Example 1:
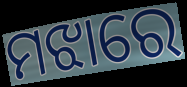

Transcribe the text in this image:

ମଝାରେ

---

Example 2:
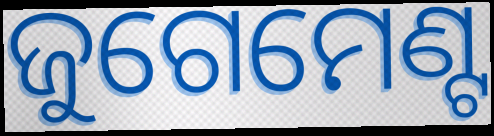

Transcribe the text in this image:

ଜୁଗେମେଣ୍ଟ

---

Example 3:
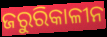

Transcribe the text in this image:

ଜରୁରିକାଳୀନ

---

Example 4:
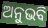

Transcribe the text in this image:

ଅନୁଭବି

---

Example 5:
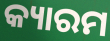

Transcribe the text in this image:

କ୍ୟାରମ